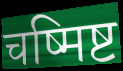
चष्मिष्ट